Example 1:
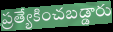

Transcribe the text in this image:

ప్రత్యేకించబడ్డారు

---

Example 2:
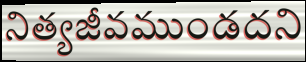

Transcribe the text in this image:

నిత్యజీవముండదని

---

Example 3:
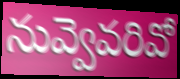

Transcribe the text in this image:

నువ్వెవరివో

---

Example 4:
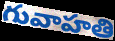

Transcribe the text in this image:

గువాహతి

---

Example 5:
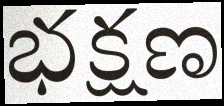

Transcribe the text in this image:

భక్షణ